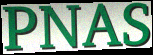
PNAS